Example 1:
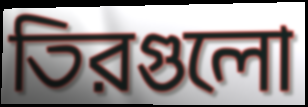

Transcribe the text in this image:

তিরগুলো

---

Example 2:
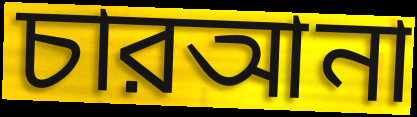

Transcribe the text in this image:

চারআনা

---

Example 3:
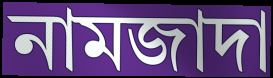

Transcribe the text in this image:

নামজাদা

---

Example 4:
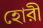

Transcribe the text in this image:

হোরী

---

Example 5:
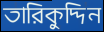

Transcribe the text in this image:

তারিকুদ্দিন